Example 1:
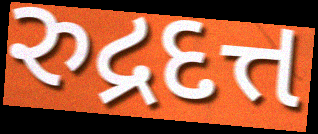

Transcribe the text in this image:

રુદ્રદત્ત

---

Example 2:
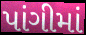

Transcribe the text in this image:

પાંગીમાં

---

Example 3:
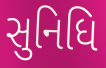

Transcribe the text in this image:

સુનિધિ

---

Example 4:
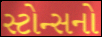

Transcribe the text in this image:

સ્ટોન્સનો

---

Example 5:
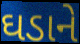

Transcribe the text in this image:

ઘડાને